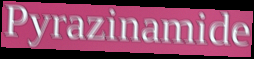
Pyrazinamide